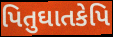
પિતુઘાતકેપિ